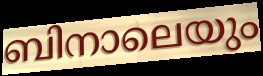
ബിനാലെയും